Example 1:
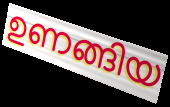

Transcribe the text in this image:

ഉണങ്ങിയ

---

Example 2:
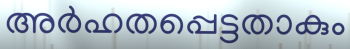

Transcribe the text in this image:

അർഹതപ്പെട്ടതാകും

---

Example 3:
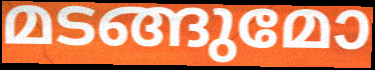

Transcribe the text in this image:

മടങ്ങുമോ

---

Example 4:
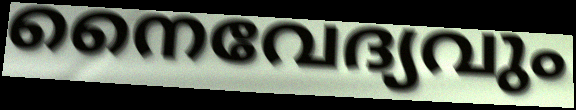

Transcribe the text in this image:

നൈവേദ്യവും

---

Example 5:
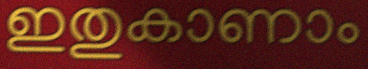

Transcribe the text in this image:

ഇതുകാണാം